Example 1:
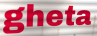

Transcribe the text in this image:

gheta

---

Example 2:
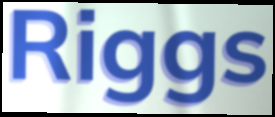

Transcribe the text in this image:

Riggs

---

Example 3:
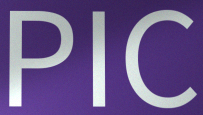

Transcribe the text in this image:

PIC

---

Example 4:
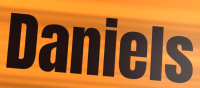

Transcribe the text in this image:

Daniels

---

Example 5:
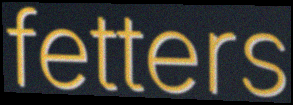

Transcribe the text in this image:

fetters